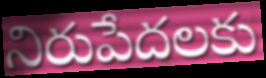
నిరుపేదలకు